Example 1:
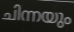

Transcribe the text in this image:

ചിന്നയും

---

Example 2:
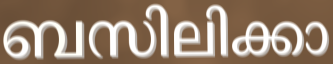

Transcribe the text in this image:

ബസിലിക്കാ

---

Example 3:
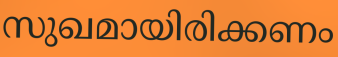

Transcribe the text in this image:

സുഖമായിരിക്കണം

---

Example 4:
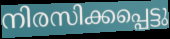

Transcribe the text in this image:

നിരസിക്കപ്പെട്ടു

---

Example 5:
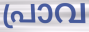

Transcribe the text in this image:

പ്രാവ